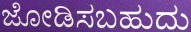
ಜೋಡಿಸಬಹುದು